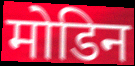
मोडिन